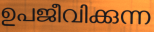
ഉപജീവിക്കുന്ന